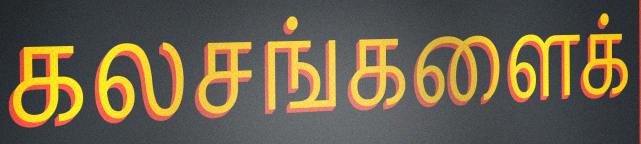
கலசங்களைக்